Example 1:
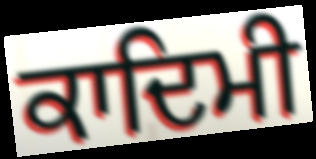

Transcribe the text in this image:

ਕਾਦਿਮੀ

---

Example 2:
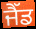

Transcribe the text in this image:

ਜੈੱਡ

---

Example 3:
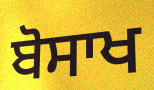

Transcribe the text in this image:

ਬੋਸਾਖ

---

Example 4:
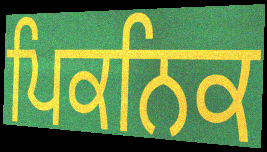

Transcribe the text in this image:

ਪਿਕਨਿਕ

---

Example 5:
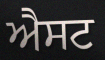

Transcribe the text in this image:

ਐਸਟ